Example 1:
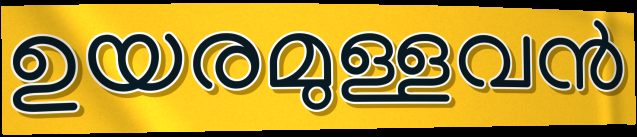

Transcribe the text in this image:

ഉയരമുള്ളവൻ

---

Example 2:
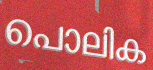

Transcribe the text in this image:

പൊലിക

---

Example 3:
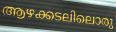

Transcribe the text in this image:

ആഴക്കടലിലൊരു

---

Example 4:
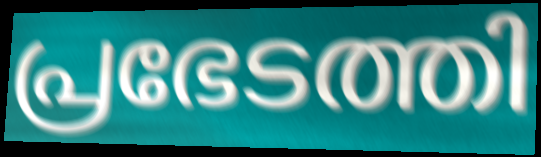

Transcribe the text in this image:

പ്രഭേടത്തി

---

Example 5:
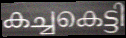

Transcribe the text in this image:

കച്ചകെട്ടി